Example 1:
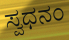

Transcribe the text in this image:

ಸ್ವಧನಂ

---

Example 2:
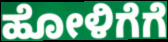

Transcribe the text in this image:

ಹೋಳಿಗೆಗೆ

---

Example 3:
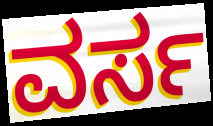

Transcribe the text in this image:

ವರ್ಸ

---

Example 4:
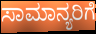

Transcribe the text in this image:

ಸಾಮಾನ್ಯರಿಗೆ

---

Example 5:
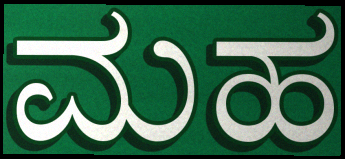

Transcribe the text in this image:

ಮಹ